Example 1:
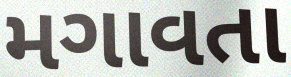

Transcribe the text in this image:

મગાવતા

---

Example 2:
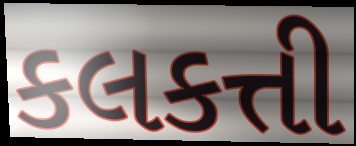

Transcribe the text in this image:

કલકત્તી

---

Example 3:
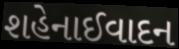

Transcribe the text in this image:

શહેનાઈવાદન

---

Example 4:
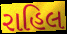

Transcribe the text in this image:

રાહિલ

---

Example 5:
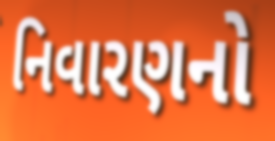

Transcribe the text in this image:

નિવારણનો